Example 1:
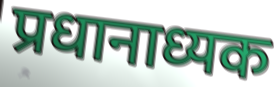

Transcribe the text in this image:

प्रधानाध्यक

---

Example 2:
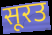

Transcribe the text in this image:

सूरउ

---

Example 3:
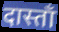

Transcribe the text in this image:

दास्ताँ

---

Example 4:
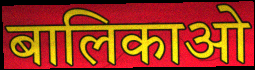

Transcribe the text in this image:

बालिकाओ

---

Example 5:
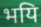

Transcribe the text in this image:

भयि